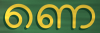
ണെ